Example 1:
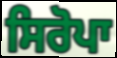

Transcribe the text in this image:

ਸਿਰੋਪਾ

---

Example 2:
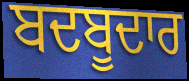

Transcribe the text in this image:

ਬਦਬੂਦਾਰ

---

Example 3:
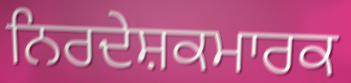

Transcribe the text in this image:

ਨਿਰਦੇਸ਼ਕਮਾਰਕ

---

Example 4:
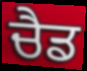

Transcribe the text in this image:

ਚੈਡ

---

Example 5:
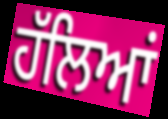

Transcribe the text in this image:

ਹੱਲਿਆਂ